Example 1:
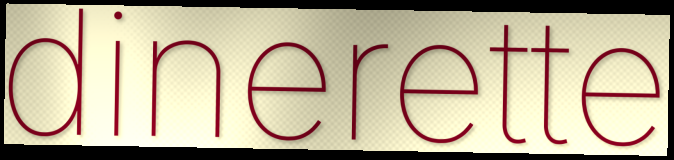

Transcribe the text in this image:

dinerette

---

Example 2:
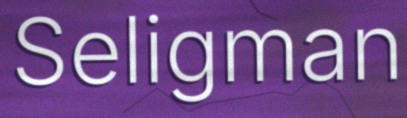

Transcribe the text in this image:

Seligman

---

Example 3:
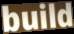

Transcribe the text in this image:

build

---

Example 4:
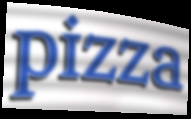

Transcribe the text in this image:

pizza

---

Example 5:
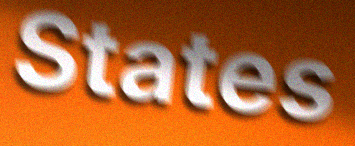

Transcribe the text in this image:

States